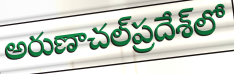
అరుణాచల్‌ప్రదేశ్‌లో